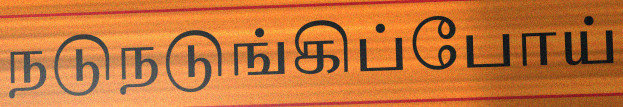
நடுநடுங்கிப்போய்